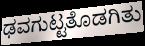
ಢವಗುಟ್ಟತೊಡಗಿತು